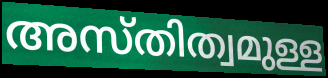
അസ്തിത്വമുള്ള